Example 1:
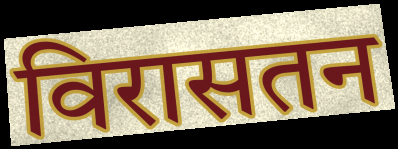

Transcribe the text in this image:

विरासतन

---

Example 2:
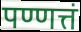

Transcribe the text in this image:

पण्णत्तं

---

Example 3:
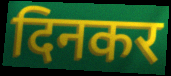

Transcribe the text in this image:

दिनकर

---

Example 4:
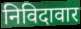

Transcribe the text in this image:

निविदावार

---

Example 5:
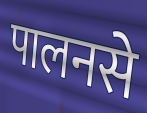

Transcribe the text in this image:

पालनसे